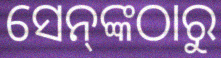
ସେନ୍‌ଙ୍କଠାରୁ